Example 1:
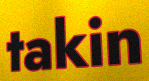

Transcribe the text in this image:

takin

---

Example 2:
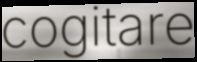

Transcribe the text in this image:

cogitare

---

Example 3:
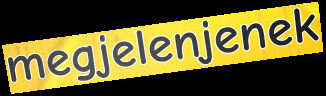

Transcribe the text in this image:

megjelenjenek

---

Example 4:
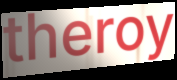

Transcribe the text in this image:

theroy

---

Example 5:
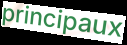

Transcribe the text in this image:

principaux